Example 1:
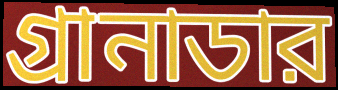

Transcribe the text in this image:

গ্রানাডার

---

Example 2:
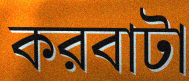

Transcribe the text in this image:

করবাটা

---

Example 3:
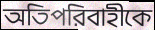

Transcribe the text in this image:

অতিপরিবাহীকে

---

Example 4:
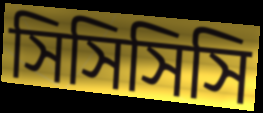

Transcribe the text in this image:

সিসিসিসি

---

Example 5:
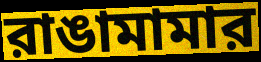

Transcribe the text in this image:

রাঙামামার